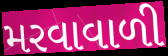
મરવાવાળી